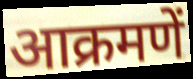
आक्रमणें